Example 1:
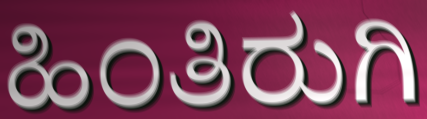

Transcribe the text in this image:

ಹಿಂತಿರುಗಿ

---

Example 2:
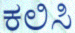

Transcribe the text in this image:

ಕಲಿಸಿ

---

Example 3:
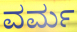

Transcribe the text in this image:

ವರ್ಮ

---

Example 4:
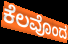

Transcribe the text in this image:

ಕೆಲವೊಂದ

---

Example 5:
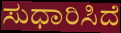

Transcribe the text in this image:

ಸುಧಾರಿಸಿದೆ